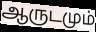
ஆருடமும்